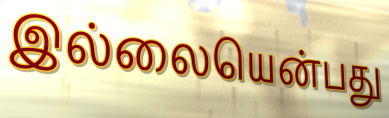
இல்லையென்பது